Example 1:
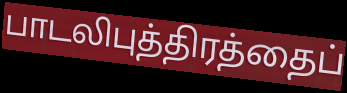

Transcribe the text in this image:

பாடலிபுத்திரத்தைப்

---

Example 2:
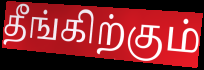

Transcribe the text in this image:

தீங்கிற்கும்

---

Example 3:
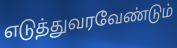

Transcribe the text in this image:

எடுத்துவரவேண்டும்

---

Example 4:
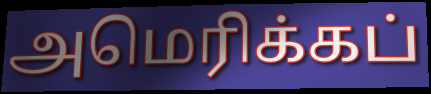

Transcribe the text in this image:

அமெரிக்கப்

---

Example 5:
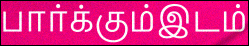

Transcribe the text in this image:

பார்க்கும்இடம்